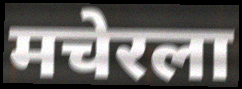
मचेरला